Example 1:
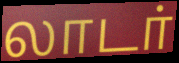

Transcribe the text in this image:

லாடர்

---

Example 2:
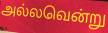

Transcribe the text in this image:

அல்லவென்று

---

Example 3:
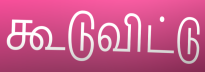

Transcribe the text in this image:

கூடுவிட்டு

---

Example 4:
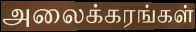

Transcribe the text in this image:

அலைக்கரங்கள்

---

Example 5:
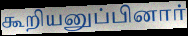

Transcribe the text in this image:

கூறியனுப்பினார்